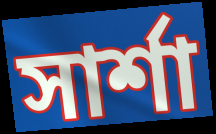
সার্শা